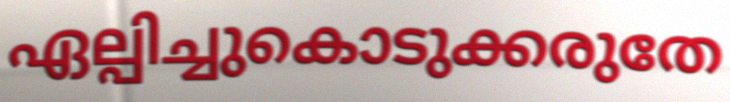
ഏല്പിച്ചുകൊടുക്കരുതേ